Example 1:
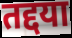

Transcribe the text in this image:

तद्दया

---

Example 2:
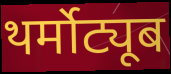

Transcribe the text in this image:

थर्मोट्यूब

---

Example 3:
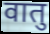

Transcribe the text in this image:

वातु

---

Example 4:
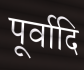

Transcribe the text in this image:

पूर्वादि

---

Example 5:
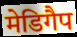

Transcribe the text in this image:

मेडिगैप